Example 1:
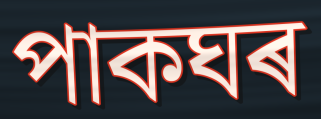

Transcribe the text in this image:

পাকঘৰ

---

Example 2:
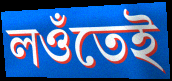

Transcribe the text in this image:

লওঁতেই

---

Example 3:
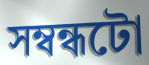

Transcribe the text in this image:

সম্বন্ধটো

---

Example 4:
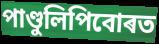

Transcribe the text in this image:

পাণ্ডুলিপিবোৰত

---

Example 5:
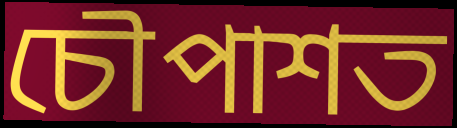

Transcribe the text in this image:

চৌপাশত